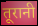
तूरानी